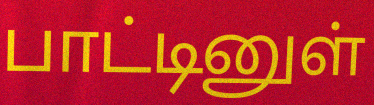
பாட்டினுள்